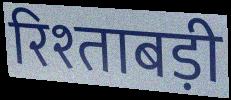
रिश्ताबड़ी